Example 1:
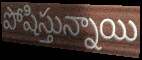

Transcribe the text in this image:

పోషిస్తున్నాయి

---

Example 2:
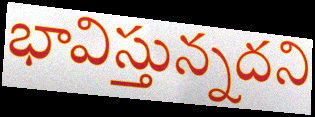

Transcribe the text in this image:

భావిస్తున్నదని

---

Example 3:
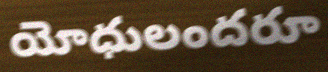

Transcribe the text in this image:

యోధులందరూ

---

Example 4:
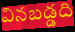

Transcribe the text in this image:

వినబడ్డది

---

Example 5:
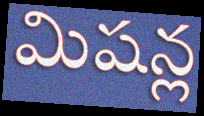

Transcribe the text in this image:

మిషన్ల